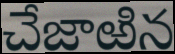
చేజాఱిన